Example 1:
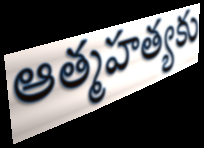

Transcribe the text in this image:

ఆత్మహత్యకు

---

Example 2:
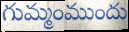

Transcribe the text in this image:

గుమ్మంముందు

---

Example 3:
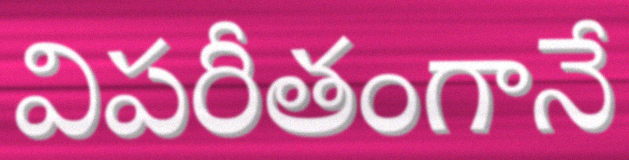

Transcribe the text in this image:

విపరీతంగానే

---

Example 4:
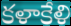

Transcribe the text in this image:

కళాకేళి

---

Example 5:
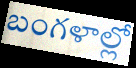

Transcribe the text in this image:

బంగళాల్లో